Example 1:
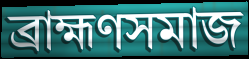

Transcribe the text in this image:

ব্রাহ্মণসমাজ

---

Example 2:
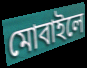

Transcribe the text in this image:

মোবাইলে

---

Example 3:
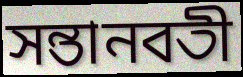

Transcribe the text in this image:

সন্তানবতী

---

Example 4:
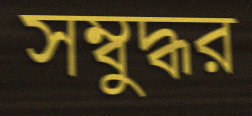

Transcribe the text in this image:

সম্বুদ্ধর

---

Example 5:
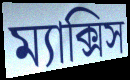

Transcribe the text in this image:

ম্যাক্সিস